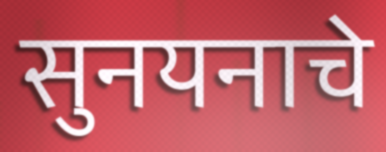
सुनयनाचे